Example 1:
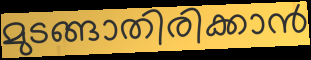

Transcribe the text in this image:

മുടങ്ങാതിരിക്കാൻ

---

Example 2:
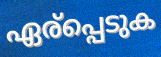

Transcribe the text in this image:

ഏര്പ്പെടുക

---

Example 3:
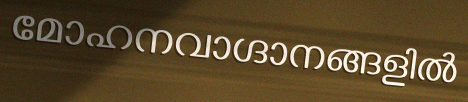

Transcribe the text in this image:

മോഹനവാഗ്ദാനങ്ങളിൽ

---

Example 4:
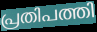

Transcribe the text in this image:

പ്രതിപത്തി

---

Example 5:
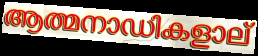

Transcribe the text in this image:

ആത്മനാഡികളാല്